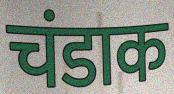
चंडाक